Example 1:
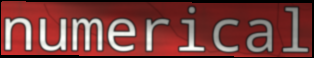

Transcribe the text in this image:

numerical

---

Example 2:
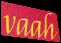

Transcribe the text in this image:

vaah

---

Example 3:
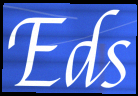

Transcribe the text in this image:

Eds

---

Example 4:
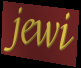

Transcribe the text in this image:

jewi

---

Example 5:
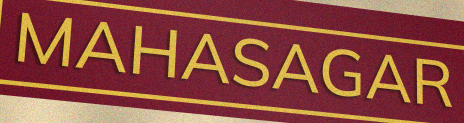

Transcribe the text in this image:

MAHASAGAR